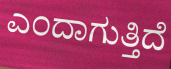
ಎಂದಾಗುತ್ತಿದೆ